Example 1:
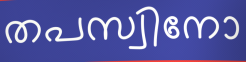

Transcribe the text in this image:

തപസ്വിനോ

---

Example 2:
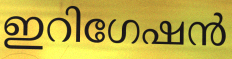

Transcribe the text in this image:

ഇറിഗേഷൻ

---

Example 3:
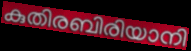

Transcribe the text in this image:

കുതിരബിരിയാനി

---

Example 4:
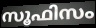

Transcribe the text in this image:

സൂഫിസം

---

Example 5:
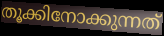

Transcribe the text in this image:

തൂക്കിനോക്കുന്നത്